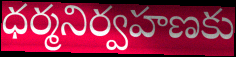
ధర్మనిర్వహణకు